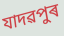
যাদৱপুৰ